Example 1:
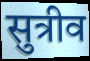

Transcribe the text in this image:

सुत्रीव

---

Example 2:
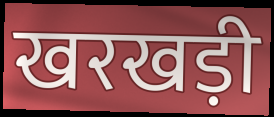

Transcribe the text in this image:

खरखड़ी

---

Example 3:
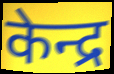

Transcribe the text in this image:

केन्द्र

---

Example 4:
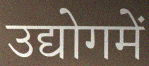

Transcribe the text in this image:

उद्योगमें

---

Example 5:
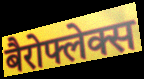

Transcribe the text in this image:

बैरोफ्लेक्स